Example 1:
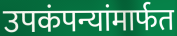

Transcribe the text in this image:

उपकंपन्यांमार्फत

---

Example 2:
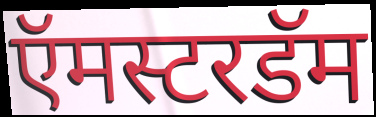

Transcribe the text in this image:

ऍमस्टरडॅम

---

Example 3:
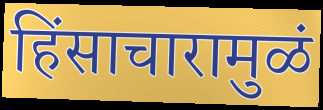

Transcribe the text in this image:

हिंसाचारामुळं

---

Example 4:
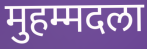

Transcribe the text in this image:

मुहम्मदला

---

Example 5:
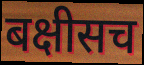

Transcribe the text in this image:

बक्षीसच